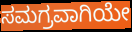
ಸಮಗ್ರವಾಗಿಯೇ